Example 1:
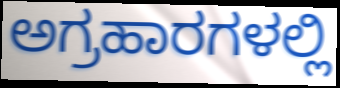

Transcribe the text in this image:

ಅಗ್ರಹಾರಗಳಲ್ಲಿ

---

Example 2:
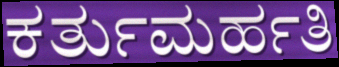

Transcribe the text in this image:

ಕರ್ತುಮರ್ಹತಿ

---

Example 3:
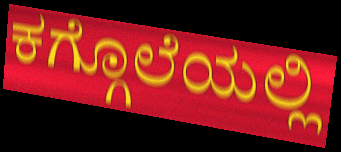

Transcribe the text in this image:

ಕಗ್ಗೊಲೆಯಲ್ಲಿ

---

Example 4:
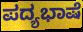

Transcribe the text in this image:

ಪದ್ಯಭಾಷೆ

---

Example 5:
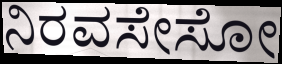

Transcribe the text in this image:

ನಿರವಸೇಸೋ